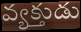
వ్యక్తుడు